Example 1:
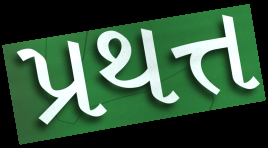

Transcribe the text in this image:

પ્રથત્ત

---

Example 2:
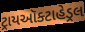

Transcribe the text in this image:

ટ્રાયઑક્ટાહેડ્રલ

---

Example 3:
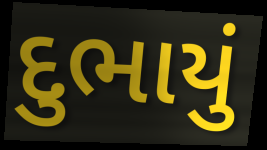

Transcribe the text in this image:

દુભાયું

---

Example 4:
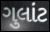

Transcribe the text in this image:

ગુલાંટ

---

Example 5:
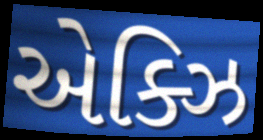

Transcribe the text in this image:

એક્ઝિ